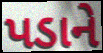
પડાને